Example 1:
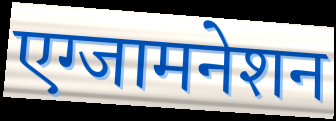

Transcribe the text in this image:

एग्जामनेशन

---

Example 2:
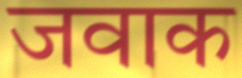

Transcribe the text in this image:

जवाक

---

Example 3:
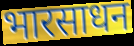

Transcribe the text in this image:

भारसाधन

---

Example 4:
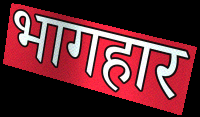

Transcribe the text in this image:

भागहार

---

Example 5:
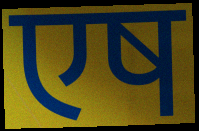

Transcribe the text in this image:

एष